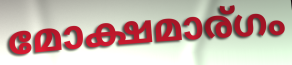
മോക്ഷമാര്ഗം